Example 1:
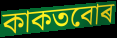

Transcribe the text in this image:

কাকতবোৰ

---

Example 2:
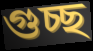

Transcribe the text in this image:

গুচ্ছ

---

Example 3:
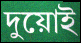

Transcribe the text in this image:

দুয়োই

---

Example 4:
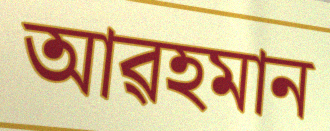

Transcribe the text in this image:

আৱহমান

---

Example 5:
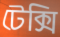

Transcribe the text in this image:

টেক্সি